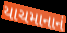
યાચમાનાનં